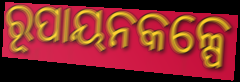
ରୂପାୟନକଳ୍ପେ